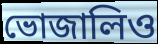
ভোজালিও